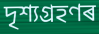
দৃশ্যগ্ৰহণৰ